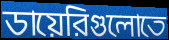
ডায়েরিগুলোতে